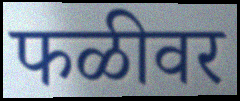
फळीवर